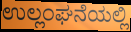
ಉಲ್ಲಂಘನೆಯಲ್ಲಿ